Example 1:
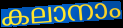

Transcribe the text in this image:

കലാനാം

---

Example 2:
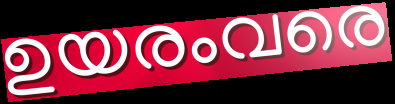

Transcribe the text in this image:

ഉയരംവരെ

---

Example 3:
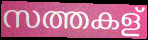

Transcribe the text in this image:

സത്തകള്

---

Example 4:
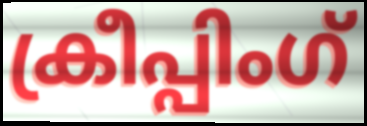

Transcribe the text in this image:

ക്രീപ്പിംഗ്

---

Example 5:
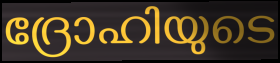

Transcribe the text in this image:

ദ്രോഹിയുടെ